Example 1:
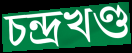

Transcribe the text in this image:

চন্দ্রখণ্ড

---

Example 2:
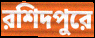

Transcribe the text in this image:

রশিদপুরে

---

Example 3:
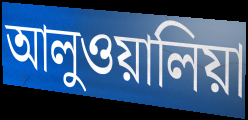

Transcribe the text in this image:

আলুওয়ালিয়া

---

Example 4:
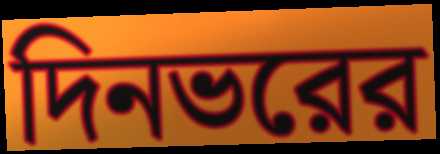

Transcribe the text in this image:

দিনভরের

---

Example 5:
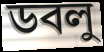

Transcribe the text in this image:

ডবলু